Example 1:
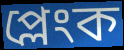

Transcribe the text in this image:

প্লেংক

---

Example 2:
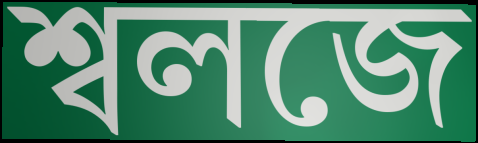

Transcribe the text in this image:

শ্বলজে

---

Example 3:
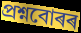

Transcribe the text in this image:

প্ৰশ্নবোৰৰ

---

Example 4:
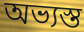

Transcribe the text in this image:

অভ্যস্ত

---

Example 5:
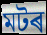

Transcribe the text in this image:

মটৰ